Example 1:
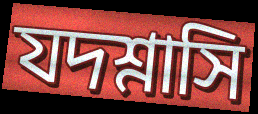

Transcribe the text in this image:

যদশ্নাসি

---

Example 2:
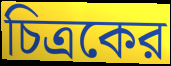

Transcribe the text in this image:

চিত্রকের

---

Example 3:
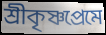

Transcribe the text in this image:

শ্রীকৃষ্ণপ্রেমে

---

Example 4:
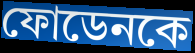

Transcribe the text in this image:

ফোডেনকে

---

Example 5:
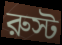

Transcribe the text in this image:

রুস্ট